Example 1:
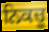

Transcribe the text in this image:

ਨਿਕਚੂ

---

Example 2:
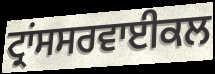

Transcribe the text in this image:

ਟ੍ਰਾਂਸਸਰਵਾਈਕਲ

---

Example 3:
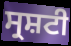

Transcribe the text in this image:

ਸ੍ਰਸ਼ਟੀ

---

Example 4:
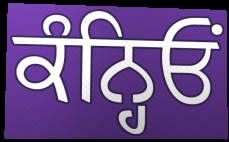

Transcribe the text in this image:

ਕੰਨ੍ਹਿਓਂ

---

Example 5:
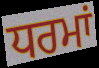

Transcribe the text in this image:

ਧਰਮਾਂ